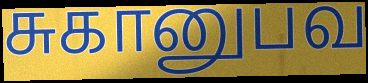
சுகானுபவ